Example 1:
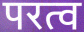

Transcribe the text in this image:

परत्व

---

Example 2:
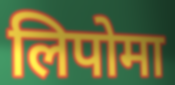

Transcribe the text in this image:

लिपोमा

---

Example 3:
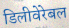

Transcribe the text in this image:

डिलीवेरेबल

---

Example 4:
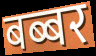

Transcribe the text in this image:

बब्बर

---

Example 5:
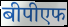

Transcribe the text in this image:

बीपीएफ